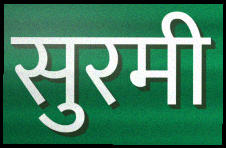
सुरमी